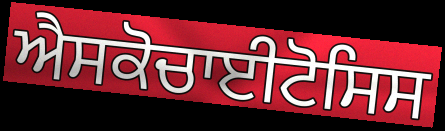
ਐਸਕੋਚਾਈਟੋਸਿਸ